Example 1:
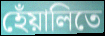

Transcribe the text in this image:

হেঁয়ালিতে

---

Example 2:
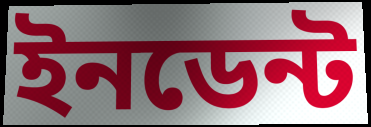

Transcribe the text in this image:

ইনডেন্ট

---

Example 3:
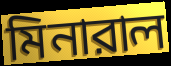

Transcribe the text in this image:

মিনারাল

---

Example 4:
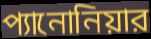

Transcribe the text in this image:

প্যানোনিয়ার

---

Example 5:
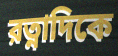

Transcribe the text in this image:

রত্নাদিকে